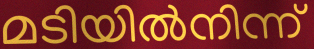
മടിയിൽനിന്ന്